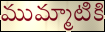
ముమ్మాటికి